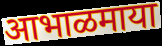
आभाळमाया